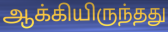
ஆக்கியிருந்தது